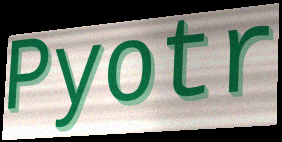
Pyotr